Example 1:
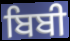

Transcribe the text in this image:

ਬਿਬੀ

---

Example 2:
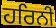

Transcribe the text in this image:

ਹਰਿਨੀ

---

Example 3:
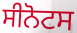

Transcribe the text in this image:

ਸੀਨੋਟਸ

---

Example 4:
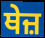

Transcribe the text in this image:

ਥੇਜ਼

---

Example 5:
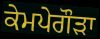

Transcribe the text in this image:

ਕੇਮਪੇਗੌੜਾ